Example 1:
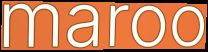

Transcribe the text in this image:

maroo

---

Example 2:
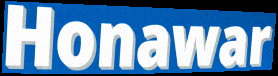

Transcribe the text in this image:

Honawar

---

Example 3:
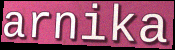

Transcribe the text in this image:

arnika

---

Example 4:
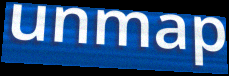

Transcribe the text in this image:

unmap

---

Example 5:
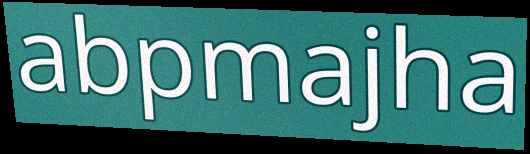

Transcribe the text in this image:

abpmajha